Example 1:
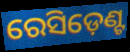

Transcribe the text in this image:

ରେସିଡ଼େଣ୍ଟ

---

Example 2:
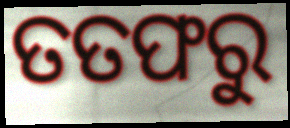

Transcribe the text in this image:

ତତଫରୁ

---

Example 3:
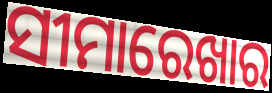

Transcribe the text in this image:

ସୀମାରେଖାର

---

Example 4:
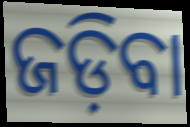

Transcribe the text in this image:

ଜଡ଼ିବା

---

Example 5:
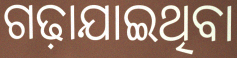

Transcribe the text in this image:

ଗଢ଼ାଯାଇଥିବା